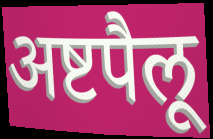
अष्टपैलू